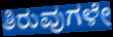
ತಿರುವುಗಳೇ